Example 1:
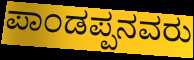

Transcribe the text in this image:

ಪಾಂಡಪ್ಪನವರು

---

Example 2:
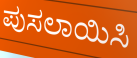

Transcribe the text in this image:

ಪುಸಲಾಯಿಸಿ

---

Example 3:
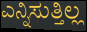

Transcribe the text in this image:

ಎನ್ನಿಸುತ್ತಿಲ್ಲ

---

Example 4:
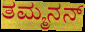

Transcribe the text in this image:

ತಮ್ಮನನ್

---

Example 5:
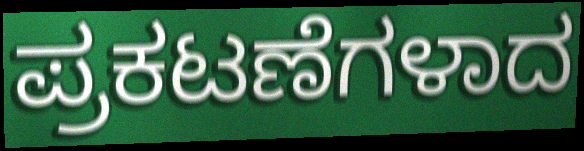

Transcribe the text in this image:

ಪ್ರಕಟಣೆಗಳಾದ